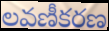
లవణీకరణ